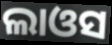
ଲାଓସ